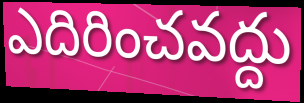
ఎదిరించవద్దు